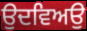
ਉਦਵਿਅਉ